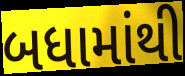
બધામાંથી